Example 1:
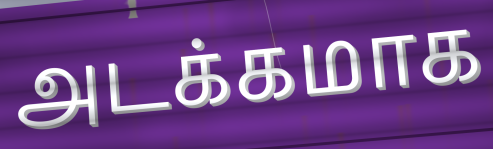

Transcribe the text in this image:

அடக்கமாக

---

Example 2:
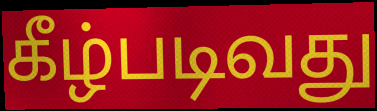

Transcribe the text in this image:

கீழ்படிவது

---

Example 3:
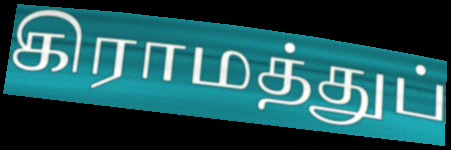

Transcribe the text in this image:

கிராமத்துப்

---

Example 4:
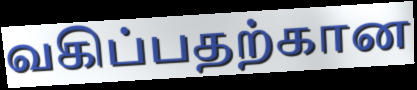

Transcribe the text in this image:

வகிப்பதற்கான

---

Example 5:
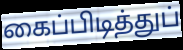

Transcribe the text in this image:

கைப்பிடித்துப்